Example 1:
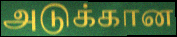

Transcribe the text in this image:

அடுக்கான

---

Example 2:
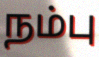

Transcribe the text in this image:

நம்பு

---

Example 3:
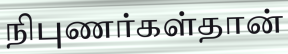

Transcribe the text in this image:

நிபுணர்கள்தான்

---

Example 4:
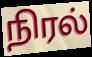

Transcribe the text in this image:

நிரல்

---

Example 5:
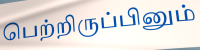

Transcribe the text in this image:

பெற்றிருப்பினும்